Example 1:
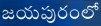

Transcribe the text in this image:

జయపురంలో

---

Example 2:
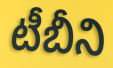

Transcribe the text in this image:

టీబీని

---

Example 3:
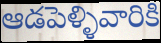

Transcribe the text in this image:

ఆడపెళ్ళివారికి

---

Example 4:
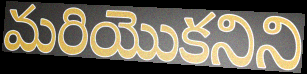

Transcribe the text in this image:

మరియొకనిని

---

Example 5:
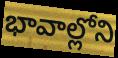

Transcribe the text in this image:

భావాల్లోని